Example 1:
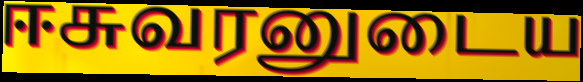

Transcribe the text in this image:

ஈசுவரனுடைய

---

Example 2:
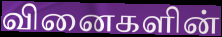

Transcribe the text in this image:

வினைகளின்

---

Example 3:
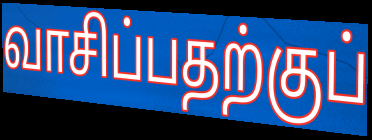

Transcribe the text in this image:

வாசிப்பதற்குப்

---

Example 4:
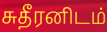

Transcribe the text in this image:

சுதீரனிடம்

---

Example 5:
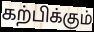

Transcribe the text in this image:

கற்பிக்கும்